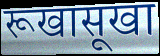
रूखासूखा